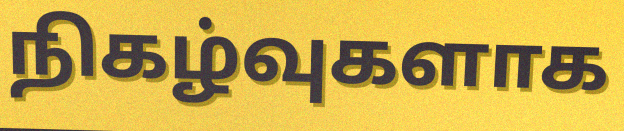
நிகழ்வுகளாக